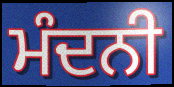
ਮੰਦਨੀ